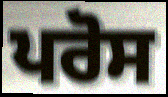
ਪਰੋਸ